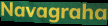
Navagraha